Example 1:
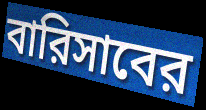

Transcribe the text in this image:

বারিসাবের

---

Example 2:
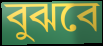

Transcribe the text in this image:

বুঝবে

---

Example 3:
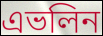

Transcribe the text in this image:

এভলিন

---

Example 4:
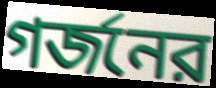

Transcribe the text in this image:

গর্জনের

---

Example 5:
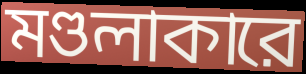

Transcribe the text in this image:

মণ্ডলাকারে